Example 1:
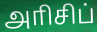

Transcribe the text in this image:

அரிசிப்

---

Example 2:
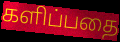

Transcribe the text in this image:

களிப்பதை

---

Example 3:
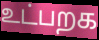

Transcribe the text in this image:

உட்பறக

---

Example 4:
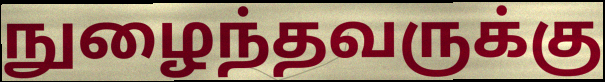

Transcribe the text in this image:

நுழைந்தவருக்கு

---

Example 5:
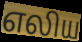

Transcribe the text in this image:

எலிய